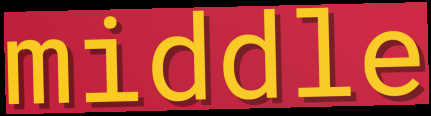
middle